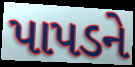
પાપડને